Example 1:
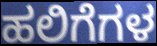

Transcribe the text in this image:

ಹಲಿಗೆಗಳ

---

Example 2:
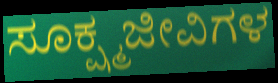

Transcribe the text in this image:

ಸೂಕ್ಷ್ಮಜೀವಿಗಳ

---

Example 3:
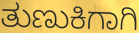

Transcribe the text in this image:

ತುಣುಕಿಗಾಗಿ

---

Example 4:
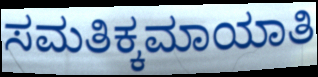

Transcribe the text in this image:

ಸಮತಿಕ್ಕಮಾಯಾತಿ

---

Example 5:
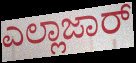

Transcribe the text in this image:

ಎಲ್ಲಾಜಾರ್